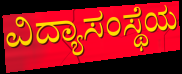
ವಿದ್ಯಾಸಂಸ್ಥೆಯ